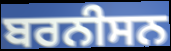
ਬਰਨੀਸਨ